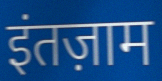
इंतज़ाम